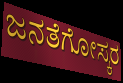
ಜನತೆಗೋಸ್ಕರ